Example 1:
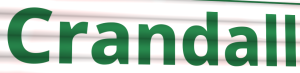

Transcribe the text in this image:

Crandall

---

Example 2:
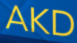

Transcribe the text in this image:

AKD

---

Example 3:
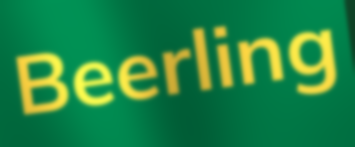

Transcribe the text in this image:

Beerling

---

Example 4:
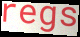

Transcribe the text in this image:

regs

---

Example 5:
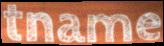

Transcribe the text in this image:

tname